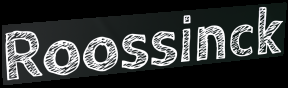
Roossinck